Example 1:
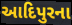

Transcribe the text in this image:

આદિપુરના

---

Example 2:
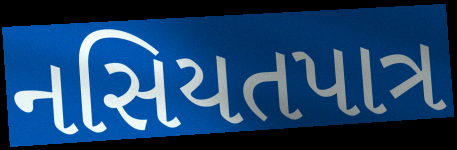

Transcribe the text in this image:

નસિયતપાત્ર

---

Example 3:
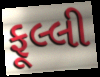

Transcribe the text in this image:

ફૂલ્લી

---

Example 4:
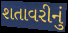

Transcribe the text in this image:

શતાવરીનું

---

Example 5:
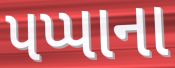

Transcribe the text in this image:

પપ્પાના